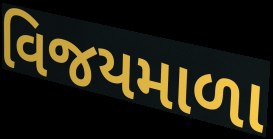
વિજયમાળા